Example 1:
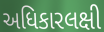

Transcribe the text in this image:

અધિકારલક્ષી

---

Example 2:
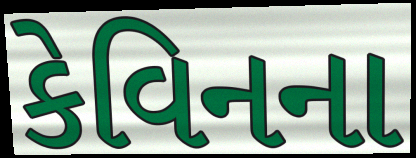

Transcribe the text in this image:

કેવિનના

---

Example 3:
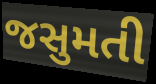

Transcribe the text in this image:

જસુમતી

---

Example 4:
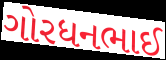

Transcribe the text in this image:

ગોરધનભાઈ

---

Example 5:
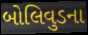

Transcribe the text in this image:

બોલિવુડના